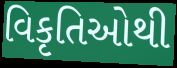
વિકૃતિઓથી